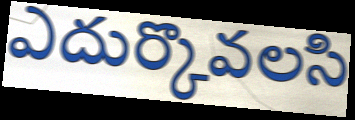
ఎదుర్కొవలసి